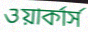
ওয়ার্কার্স